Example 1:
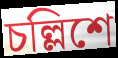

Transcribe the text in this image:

চল্লিশে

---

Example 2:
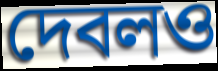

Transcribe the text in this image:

দেবলও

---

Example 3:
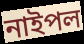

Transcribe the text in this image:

নাইপল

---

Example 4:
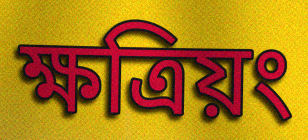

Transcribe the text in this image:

ক্ষত্রিয়ং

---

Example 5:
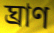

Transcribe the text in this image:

ঘ্রাণ